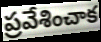
ప్రవేశించాక